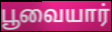
பூவையார்